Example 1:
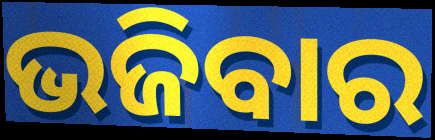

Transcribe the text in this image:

ଭଜିବାର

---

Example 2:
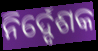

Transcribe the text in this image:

ନିର୍ଦ୍ଦେଶକ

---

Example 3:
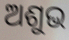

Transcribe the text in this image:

ଅଶୁଭ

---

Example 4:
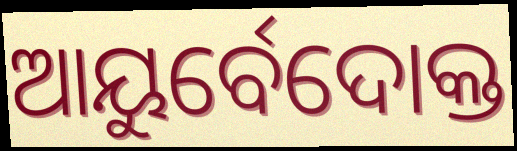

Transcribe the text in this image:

ଆୟୁର୍ବେଦୋକ୍ତ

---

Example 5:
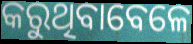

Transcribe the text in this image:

କରୁଥିବାବେଳେ